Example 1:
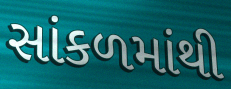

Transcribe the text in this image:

સાંકળમાંથી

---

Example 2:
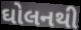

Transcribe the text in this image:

ઘોલનથી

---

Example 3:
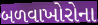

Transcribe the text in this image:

બળવાખોરોના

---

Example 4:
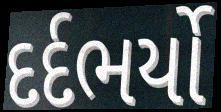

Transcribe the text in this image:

દર્દભર્યો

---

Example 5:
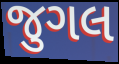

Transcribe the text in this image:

જુગલ